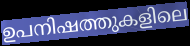
ഉപനിഷത്തുകളിലെ